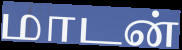
மாடன்